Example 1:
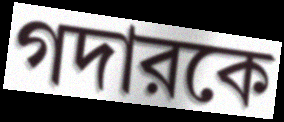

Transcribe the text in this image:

গদারকে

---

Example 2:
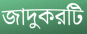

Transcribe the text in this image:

জাদুকরটি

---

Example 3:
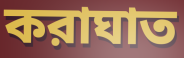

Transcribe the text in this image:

করাঘাত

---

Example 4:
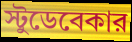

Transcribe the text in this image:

স্টুডেবেকার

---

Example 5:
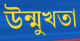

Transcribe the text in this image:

উন্মুখতা